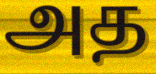
அத